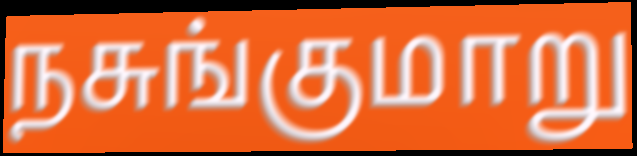
நசுங்குமாறு